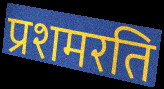
प्रशमरति